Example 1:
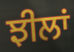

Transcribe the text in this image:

ਝੀਲਾਂ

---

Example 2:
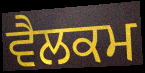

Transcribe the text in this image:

ਵੈਲਕਮ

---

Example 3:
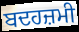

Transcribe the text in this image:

ਬਦਹਜ਼ਮੀ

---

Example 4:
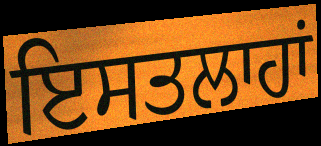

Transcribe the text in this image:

ਇਸਤਲਾਹਾਂ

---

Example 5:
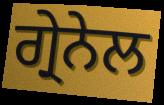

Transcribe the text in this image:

ਗ੍ਰੇਨੇਲ